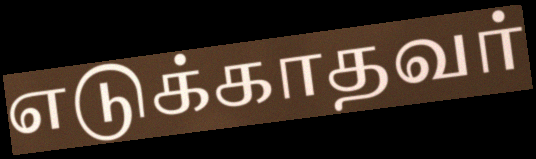
எடுக்காதவர்